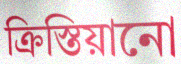
ক্রিস্তিয়ানো